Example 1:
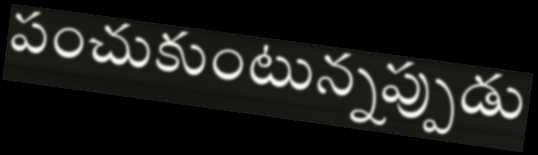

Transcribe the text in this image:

పంచుకుంటున్నప్పుడు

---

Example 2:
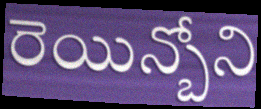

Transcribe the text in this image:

రెయిన్బోని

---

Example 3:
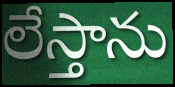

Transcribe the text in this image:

లేస్తాను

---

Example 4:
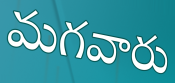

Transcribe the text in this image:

మగవారు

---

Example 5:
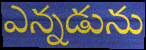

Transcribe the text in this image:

ఎన్నడును